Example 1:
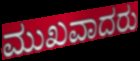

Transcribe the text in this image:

ಮುಖವಾದರು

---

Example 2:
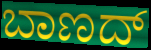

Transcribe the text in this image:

ಬಾಣದ್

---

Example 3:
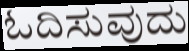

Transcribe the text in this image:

ಓದಿಸುವುದು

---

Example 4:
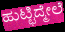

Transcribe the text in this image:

ಹುಟ್ಟಿದ್ಮೇಲೆ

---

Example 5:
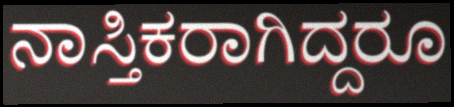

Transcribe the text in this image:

ನಾಸ್ತಿಕರಾಗಿದ್ದರೂ